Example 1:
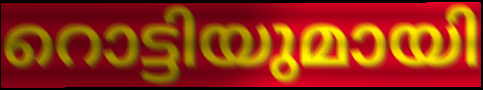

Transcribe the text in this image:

റൊട്ടിയുമായി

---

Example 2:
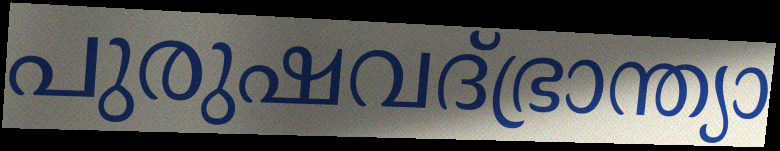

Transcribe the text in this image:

പുരുഷവദ്ഭ്രാന്ത്യാ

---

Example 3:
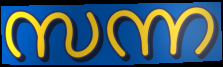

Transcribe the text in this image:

സന്ന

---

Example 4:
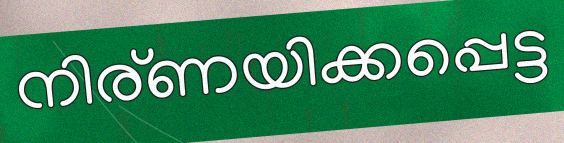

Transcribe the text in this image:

നിര്ണയിക്കപ്പെട്ട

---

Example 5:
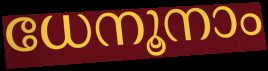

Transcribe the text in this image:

ധേനൂനാം